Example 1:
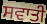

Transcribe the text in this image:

ਸਵਾਤੀ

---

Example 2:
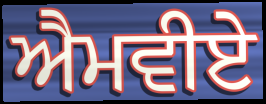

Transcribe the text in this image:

ਐਮਵੀਏ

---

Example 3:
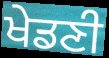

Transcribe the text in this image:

ਖੇਡਣੀ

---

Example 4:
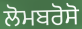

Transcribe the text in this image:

ਲੋਮਬਰੋਸੋ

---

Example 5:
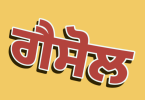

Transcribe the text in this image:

ਗੈਸੋਲ